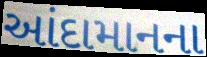
આંદામાનના